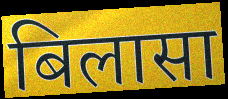
बिलासा